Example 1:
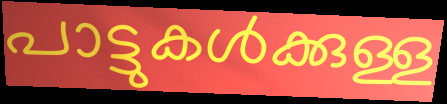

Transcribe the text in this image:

പാട്ടുകൾക്കുള്ള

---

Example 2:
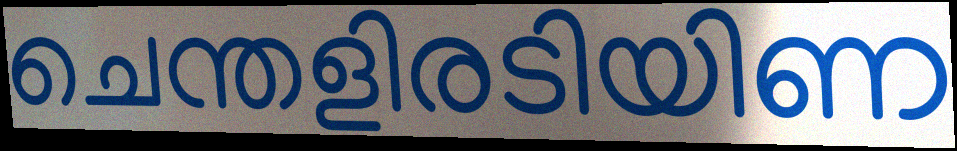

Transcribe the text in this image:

ചെന്തളിരടിയിണ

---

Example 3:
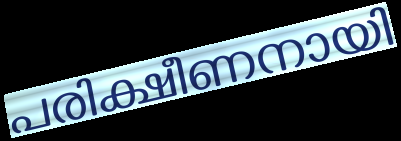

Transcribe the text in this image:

പരിക്ഷീണനായി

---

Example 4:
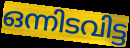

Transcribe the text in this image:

ഒന്നിടവിട്ട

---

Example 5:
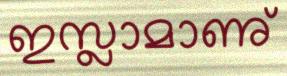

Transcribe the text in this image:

ഇസ്ലാമാണു്